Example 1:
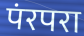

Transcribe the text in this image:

पंरपरा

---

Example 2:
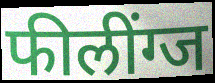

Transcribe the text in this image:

फीलींग्ज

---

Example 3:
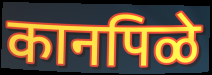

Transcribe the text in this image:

कानपिळे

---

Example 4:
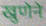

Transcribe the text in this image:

खुणेने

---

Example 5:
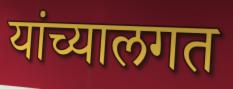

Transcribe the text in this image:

यांच्यालगत